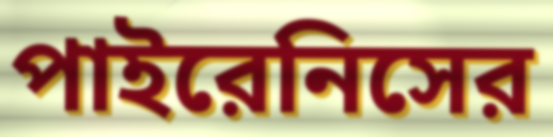
পাইরেনিসের